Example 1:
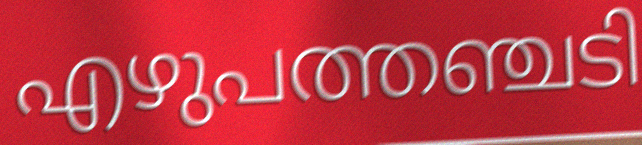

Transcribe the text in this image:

എഴുപത്തഞ്ചടി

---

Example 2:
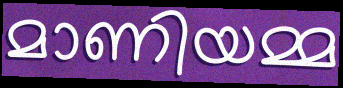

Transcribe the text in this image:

മാണിയമ്മ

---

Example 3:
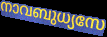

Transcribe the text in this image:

നാവബുധ്യസേ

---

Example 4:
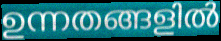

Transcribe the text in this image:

ഉന്നതങ്ങളിൽ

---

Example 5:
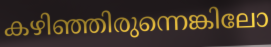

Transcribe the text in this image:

കഴിഞ്ഞിരുന്നെങ്കിലോ